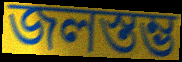
জলস্তম্ভ